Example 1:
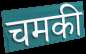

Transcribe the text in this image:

चमकी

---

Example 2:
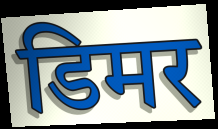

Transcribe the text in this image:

डिमर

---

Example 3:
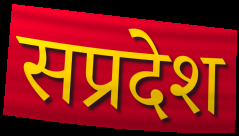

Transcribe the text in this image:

सप्रदेश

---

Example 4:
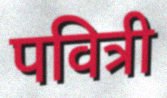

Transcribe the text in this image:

पवित्री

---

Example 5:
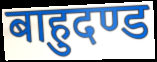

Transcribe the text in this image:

बाहुदण्ड